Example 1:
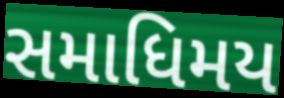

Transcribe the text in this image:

સમાધિમય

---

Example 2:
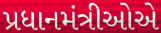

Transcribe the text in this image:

પ્રધાનમંત્રીઓએ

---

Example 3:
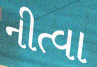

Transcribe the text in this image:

નીત્વા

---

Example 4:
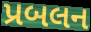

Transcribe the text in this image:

પ્રબલન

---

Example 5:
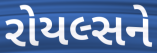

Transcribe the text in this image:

રોયલ્સને